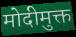
मोदीमुक्त